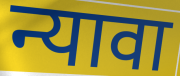
न्यावा